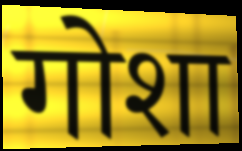
गोशा